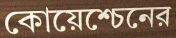
কোয়েশ্চেনের